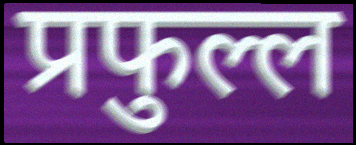
प्रफुल्ल